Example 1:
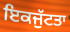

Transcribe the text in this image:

ਇਕਜੁੱਟਤਾ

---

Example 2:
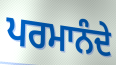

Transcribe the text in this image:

ਪਰਮਾਨੰਦੇ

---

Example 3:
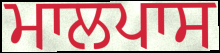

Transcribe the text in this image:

ਮਾਲਪਾਸ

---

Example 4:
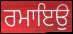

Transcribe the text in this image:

ਰਮਾਇਉ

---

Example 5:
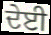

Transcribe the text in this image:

ਦੇਈ